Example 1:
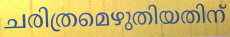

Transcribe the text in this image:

ചരിത്രമെഴുതിയതിന്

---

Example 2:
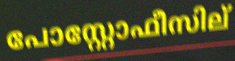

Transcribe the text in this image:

പോസ്റ്റോഫീസില്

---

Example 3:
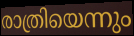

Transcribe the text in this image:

രാത്രിയെന്നും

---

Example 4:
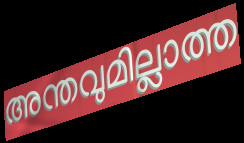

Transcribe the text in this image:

അന്തവുമില്ലാത്ത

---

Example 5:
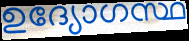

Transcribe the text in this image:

ഉദ്യോഗസ്ഥ